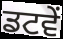
ਡਟਵੇਂ